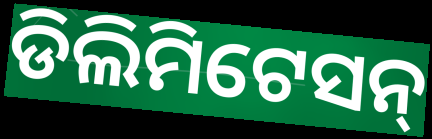
ଡିଲିମିଟେସନ୍